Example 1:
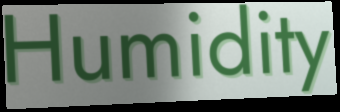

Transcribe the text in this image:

Humidity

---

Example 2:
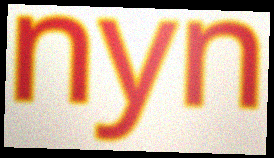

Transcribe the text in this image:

nyn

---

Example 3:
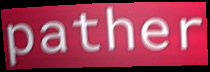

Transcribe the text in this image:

pather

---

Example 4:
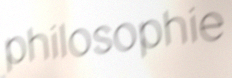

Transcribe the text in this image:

philosophie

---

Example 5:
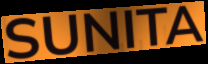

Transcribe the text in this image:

SUNITA